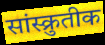
सांस्क्रुतीक